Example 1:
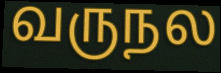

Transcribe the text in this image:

வருநல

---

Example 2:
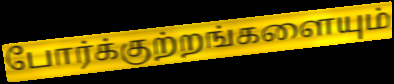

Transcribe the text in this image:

போர்க்குற்றங்களையும்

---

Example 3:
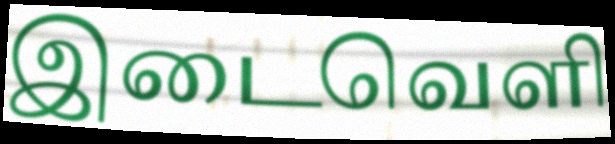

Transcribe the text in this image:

இடைவெளி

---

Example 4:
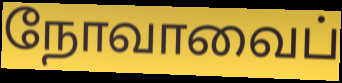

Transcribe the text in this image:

நோவாவைப்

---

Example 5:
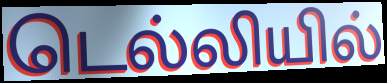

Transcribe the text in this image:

டெல்லியில்